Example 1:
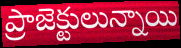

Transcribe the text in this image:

ప్రాజెక్టులున్నాయి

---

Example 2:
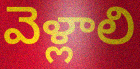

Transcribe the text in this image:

వెళ్లాలి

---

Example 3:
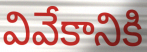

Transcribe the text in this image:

వివేకానికి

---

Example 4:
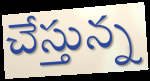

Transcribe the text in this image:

చేస్తున్న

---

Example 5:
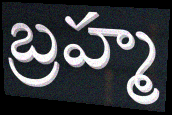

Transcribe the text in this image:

బ్రహ్మ